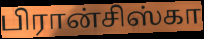
பிரான்சிஸ்கா